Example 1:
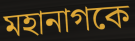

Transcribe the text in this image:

মহানাগকে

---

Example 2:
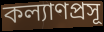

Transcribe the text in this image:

কল্যাণপ্রসূ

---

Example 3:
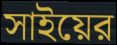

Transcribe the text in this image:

সাইয়ের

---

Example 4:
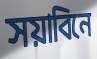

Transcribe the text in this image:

সয়াবিনে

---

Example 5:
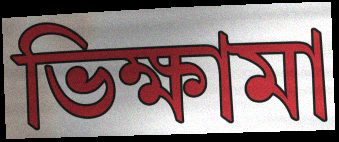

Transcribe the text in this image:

ভিক্ষামা